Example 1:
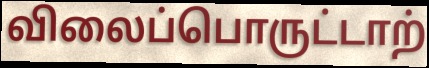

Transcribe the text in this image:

விலைப்பொருட்டாற்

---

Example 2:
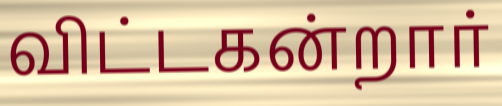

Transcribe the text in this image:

விட்டகன்றார்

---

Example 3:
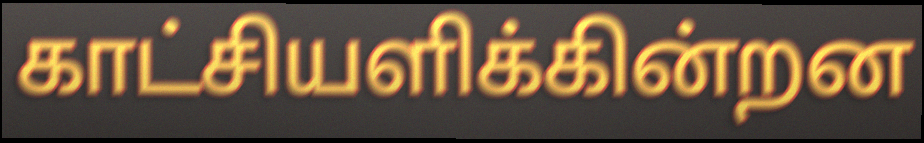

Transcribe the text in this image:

காட்சியளிக்கின்றன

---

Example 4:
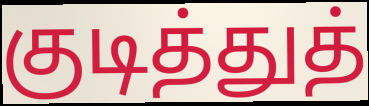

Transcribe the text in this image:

குடித்துத்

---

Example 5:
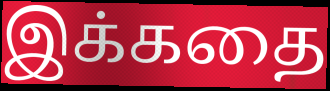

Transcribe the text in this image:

இக்கதை